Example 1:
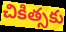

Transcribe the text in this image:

చికిత్సకు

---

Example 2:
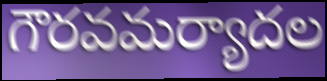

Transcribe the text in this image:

గౌరవమర్యాదల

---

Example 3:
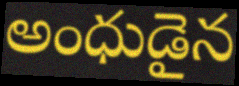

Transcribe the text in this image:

అంధుడైన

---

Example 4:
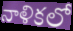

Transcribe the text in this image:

నాళికలో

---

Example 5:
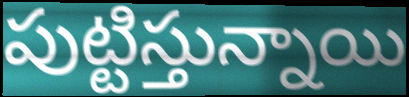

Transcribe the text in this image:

పుట్టిస్తున్నాయి